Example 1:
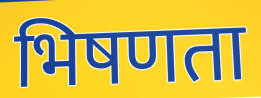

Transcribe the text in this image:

भिषणता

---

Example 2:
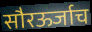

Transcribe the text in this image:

सौरऊर्जाच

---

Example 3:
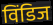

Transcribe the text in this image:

विंडिज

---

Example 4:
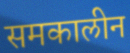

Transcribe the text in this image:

समकालीन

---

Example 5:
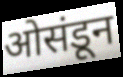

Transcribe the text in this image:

ओसंडून